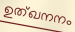
ഉത്ഖനനം